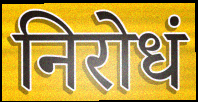
निरोधं